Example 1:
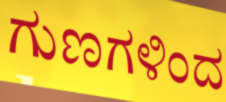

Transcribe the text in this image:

ಗುಣಗಳಿಂದ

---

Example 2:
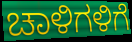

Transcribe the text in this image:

ಚಾಳಿಗಳಿಗೆ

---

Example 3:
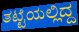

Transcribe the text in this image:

ತಟ್ಟೆಯಲ್ಲಿದ್ದ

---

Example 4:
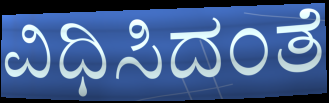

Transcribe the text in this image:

ವಿಧಿಸಿದಂತೆ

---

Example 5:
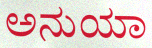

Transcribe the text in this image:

ಅನುಯಾ